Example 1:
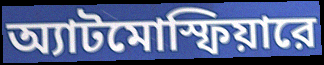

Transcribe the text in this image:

অ্যাটমোস্ফিয়ারে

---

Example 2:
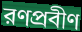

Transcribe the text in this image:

রণপ্রবীণ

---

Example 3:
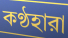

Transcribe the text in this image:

কণ্ঠহারা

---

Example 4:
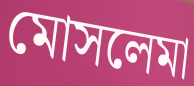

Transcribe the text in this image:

মোসলেমা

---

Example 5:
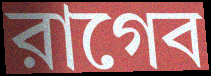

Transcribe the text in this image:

রাগেব